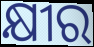
କ୍ଷୀର